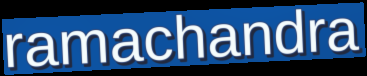
ramachandra